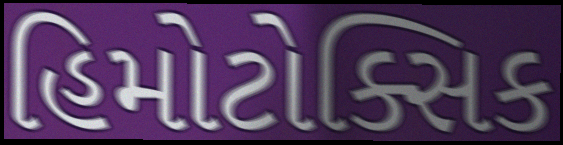
હિમોટોક્સિક